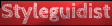
Styleguidist